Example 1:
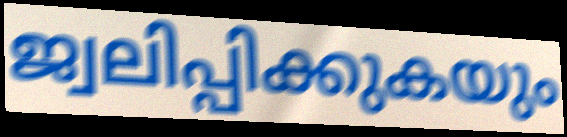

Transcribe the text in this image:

ജ്വലിപ്പിക്കുകയും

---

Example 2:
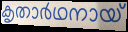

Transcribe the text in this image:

കൃതാർഥനായ്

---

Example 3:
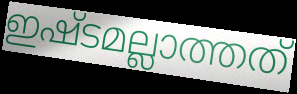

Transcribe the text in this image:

ഇഷ്ടമല്ലാത്തത്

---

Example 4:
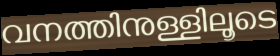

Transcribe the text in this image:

വനത്തിനുള്ളിലൂടെ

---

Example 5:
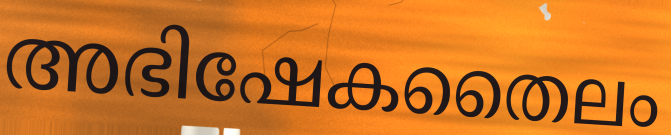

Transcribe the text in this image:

അഭിഷേകതൈലം